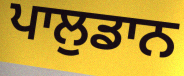
ਪਾਲੁਡਾਨ